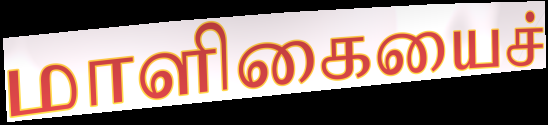
மாளிகையைச்